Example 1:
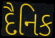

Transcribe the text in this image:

દૈનિક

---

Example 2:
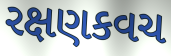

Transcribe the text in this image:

રક્ષણકવચ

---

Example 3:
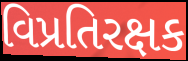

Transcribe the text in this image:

વિપ્રતિરક્ષક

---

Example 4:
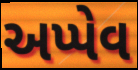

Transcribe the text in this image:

અપ્પેવ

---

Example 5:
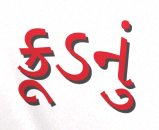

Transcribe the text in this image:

ક્રૂડનું